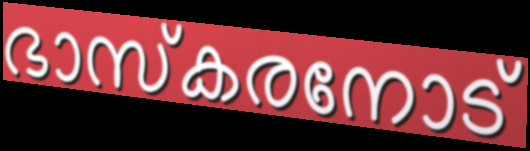
ഭാസ്കരനോട്